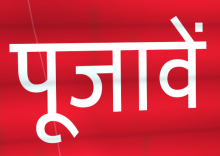
पूजावें